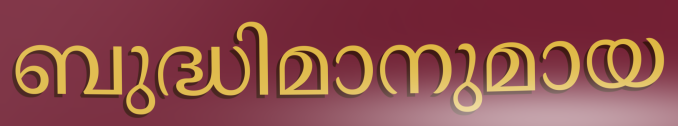
ബുദ്ധിമാനുമായ